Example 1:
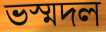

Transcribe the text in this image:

ভস্মদল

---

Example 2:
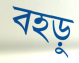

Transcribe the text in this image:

বহড়ু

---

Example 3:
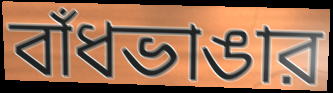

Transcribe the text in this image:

বাঁধভাঙার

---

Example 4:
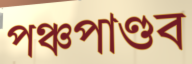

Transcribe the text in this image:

পঞ্চপাণ্ডব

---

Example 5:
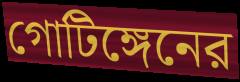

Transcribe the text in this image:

গোটিঙ্গেনের